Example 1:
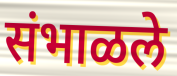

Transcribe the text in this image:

संभाळले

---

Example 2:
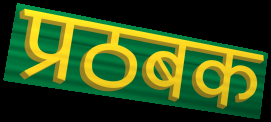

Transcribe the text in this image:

प्रठबक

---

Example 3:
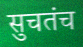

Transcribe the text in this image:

सुचतंच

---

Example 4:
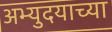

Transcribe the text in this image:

अभ्युदयाच्या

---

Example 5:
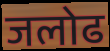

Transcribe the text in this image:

जलोढ